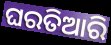
ଘରତିଆରି